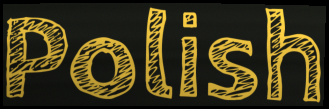
Polish